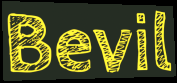
Bevil